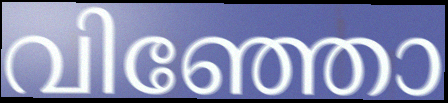
വിഞ്ഞോ